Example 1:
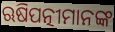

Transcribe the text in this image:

ଋଷିପତ୍ନୀମାନଙ୍କ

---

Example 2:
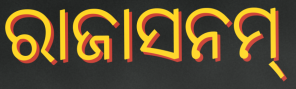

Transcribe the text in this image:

ରାଜାସନମ୍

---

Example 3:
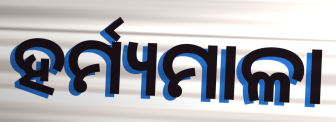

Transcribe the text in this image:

ହର୍ମ୍ୟମାଳା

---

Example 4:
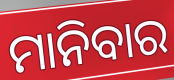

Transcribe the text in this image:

ମାନିବାର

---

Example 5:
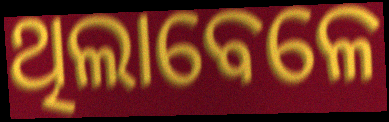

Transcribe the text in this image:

ଥିଲାବେଳେ